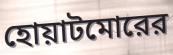
হোয়াটমোরের